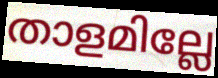
താളമില്ലേ